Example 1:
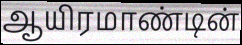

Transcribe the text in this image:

ஆயிரமாண்டின்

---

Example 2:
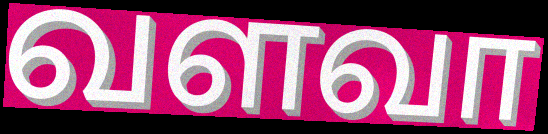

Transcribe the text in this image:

வளவா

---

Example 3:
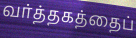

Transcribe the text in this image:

வர்த்தகத்தைப்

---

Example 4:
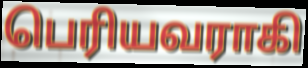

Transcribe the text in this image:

பெரியவராகி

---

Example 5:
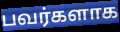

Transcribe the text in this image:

பவர்களாக